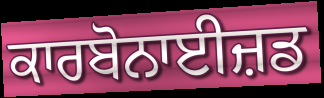
ਕਾਰਬੋਨਾਈਜ਼ਡ